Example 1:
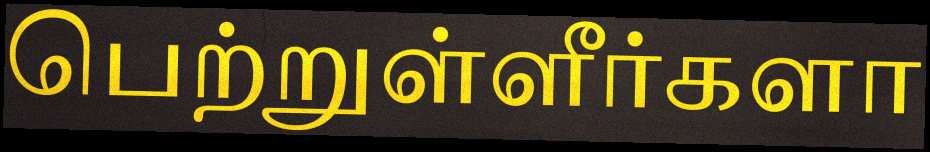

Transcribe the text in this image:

பெற்றுள்ளீர்களா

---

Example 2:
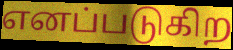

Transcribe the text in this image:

எனப்படுகிற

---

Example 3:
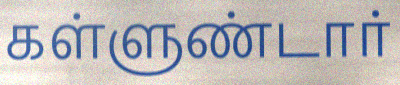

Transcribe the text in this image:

கள்ளுண்டார்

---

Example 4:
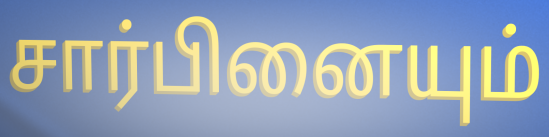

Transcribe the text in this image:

சார்பினையும்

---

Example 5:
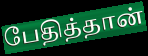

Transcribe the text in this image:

பேதித்தான்